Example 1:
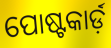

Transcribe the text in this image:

ପୋଷ୍ଟକାର୍ଡ଼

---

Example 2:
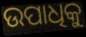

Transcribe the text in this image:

ଉପାଧିକୁ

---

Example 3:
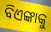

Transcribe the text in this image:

ବିଏଙ୍କାକୁ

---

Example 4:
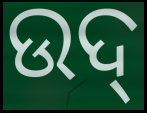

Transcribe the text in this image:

ଉଦ୍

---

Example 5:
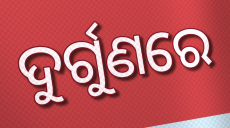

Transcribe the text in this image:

ଦୁର୍ଗୁଣରେ